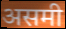
असमी